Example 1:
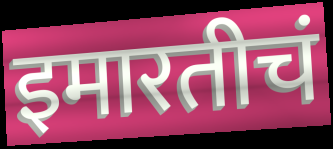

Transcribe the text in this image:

इमारतीचं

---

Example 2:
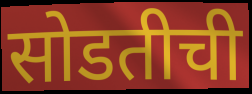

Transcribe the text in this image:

सोडतीची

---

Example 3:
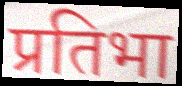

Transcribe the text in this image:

प्रतिभा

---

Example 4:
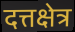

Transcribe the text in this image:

दत्तक्षेत्र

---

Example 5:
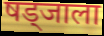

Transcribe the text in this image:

षड्जाला